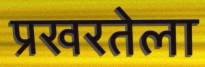
प्रखरतेला